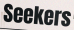
Seekers